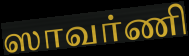
ஸாவர்ணி